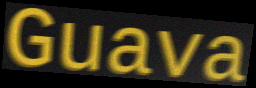
Guava